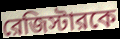
রেজিস্টারকে